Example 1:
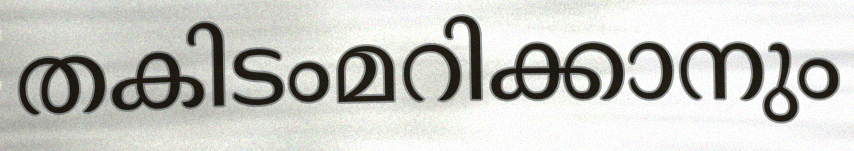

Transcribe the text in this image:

തകിടംമറിക്കാനും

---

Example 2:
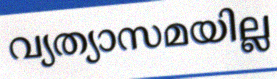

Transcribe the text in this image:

വ്യത്യാസമയില്ല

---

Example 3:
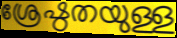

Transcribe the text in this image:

ശ്രേഷ്ഠതയുള്ള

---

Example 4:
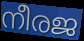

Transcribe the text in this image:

നീരജ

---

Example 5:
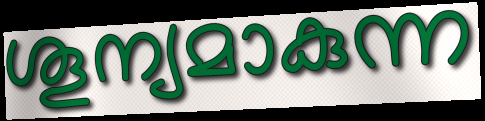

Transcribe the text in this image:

ശൂന്യമാകുന്ന